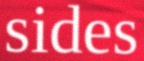
sides